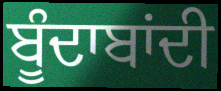
ਬੂੰਦਾਬਾਂਦੀ